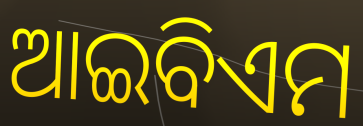
ଆଇବିଏମ